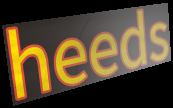
heeds